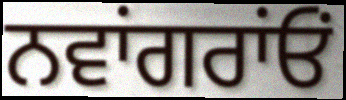
ਨਵਾਂਗਰਾਂਓਂ